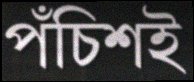
পঁচিশই